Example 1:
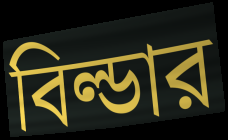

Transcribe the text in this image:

বিল্ডার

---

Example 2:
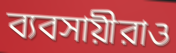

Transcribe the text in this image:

ব্যবসায়ীরাও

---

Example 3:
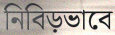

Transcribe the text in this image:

নিবিড়ভাবে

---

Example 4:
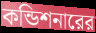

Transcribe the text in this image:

কন্ডিশনারের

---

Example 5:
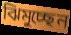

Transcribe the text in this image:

ঝিমুচ্ছেন